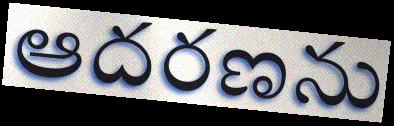
ఆదరణను